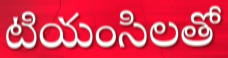
టియంసిలతో